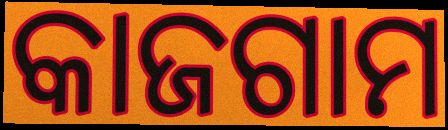
କାଜଗାମ